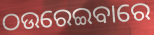
ଠଉରେଇବାରେ